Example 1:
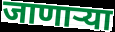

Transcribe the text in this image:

जाणाऱ्या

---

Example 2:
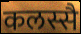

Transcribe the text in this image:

कलस्सै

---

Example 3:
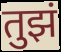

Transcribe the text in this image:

तुझं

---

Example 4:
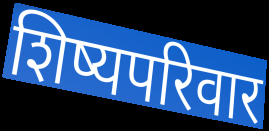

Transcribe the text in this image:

शिष्यपरिवार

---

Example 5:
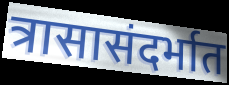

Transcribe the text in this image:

त्रासासंदर्भात